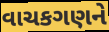
વાચકગણને